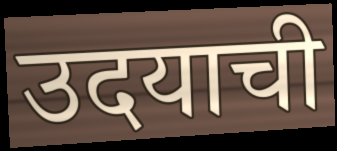
उदयाची